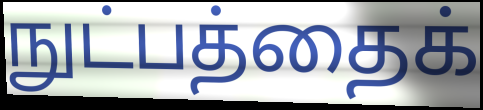
நுட்பத்தைக்